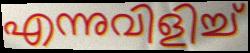
എന്നുവിളിച്ച്